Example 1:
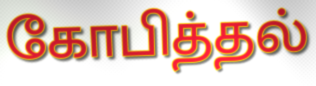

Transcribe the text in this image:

கோபித்தல்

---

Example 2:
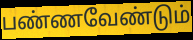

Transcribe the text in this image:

பண்ணவேண்டும்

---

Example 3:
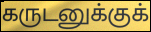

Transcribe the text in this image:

கருடனுக்குக்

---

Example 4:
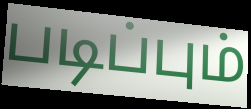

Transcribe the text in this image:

படிப்பும்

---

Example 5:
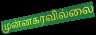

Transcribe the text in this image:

முன்னகரவில்லை